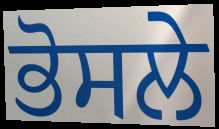
ਭੋਸਲੇ